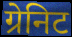
ग्रेनिट